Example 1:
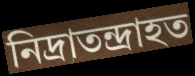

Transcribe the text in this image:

নিদ্রাতন্দ্রাহত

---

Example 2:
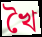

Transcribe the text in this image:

খৈ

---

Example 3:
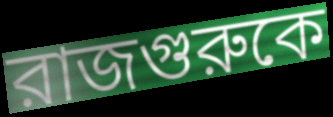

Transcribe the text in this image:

রাজগুরুকে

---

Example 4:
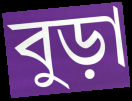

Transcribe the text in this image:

বুড়া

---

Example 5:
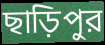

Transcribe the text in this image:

ছাড়িপুর